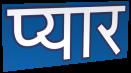
प्यार